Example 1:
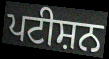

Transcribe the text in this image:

ਪਟੀਸ਼ਨ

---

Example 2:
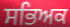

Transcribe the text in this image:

ਸਭਿਅਕ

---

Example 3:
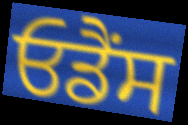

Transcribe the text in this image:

ਓਡੈਂਸ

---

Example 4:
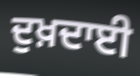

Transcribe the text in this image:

ਦੁਖ਼ਦਾਈ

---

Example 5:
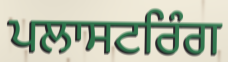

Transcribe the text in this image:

ਪਲਾਸਟਰਿੰਗ